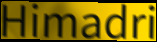
Himadri